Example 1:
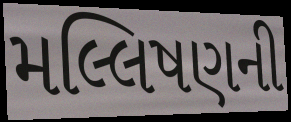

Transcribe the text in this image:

મલ્લિષણની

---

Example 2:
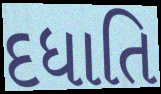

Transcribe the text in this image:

દધાતિ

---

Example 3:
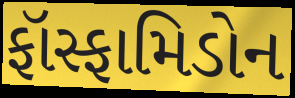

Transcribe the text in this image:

ફૉસ્ફામિડોન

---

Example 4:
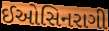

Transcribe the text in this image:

ઈઓસિનરાગી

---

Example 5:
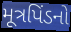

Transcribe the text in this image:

મૂત્રપિંડનો